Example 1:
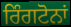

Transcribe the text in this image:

ਰਿੰਗਟੋਨਾਂ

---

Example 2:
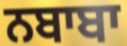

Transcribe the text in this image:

ਨਬਾਬਾ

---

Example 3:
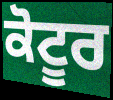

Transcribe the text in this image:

ਕੋਟੂਰ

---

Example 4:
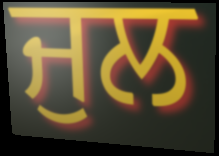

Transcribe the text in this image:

ਜੁਲ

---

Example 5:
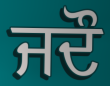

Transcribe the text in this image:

ਜਦੌ